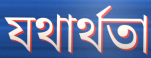
যথার্থতা